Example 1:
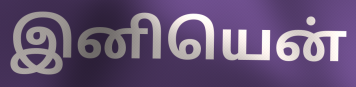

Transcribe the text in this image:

இனியென்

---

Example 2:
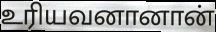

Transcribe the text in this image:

உரியவனானான்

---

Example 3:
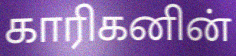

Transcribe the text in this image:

காரிகனின்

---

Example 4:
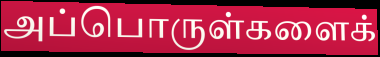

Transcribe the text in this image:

அப்பொருள்களைக்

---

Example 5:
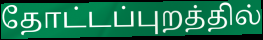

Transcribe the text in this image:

தோட்டப்புறத்தில்